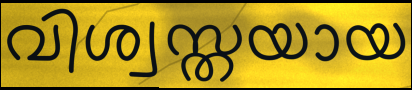
വിശ്വസ്തയായ